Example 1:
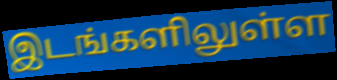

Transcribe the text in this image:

இடங்களிலுள்ள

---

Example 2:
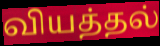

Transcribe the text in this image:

வியத்தல்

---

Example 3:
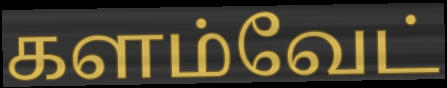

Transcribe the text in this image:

களம்வேட்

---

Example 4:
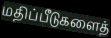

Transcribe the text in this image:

மதிப்பீடுகளைத்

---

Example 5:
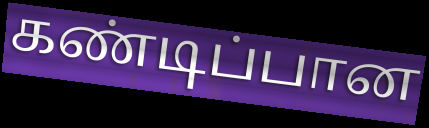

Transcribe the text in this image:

கண்டிப்பான